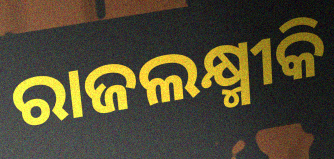
ରାଜଲକ୍ଷ୍ମୀକି